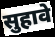
सुहावे